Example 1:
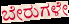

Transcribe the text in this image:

ಬೇರುಗಳೇ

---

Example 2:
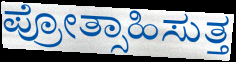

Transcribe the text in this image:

ಪ್ರೋತ್ಸಾಹಿಸುತ್ತ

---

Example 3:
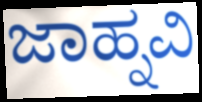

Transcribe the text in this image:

ಜಾಹ್ನವಿ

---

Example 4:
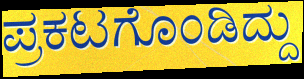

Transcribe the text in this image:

ಪ್ರಕಟಗೊಂಡಿದ್ದು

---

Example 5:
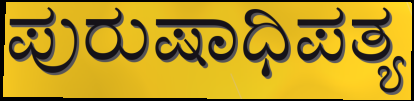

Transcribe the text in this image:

ಪುರುಷಾಧಿಪತ್ಯ